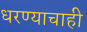
धरण्याचाही